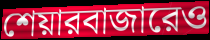
শেয়ারবাজারেও